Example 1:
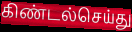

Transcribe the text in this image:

கிண்டல்செய்து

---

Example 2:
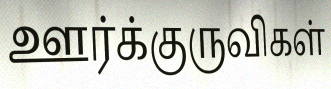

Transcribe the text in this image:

ஊர்க்குருவிகள்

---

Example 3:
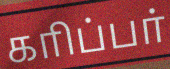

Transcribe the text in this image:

கரிப்பர்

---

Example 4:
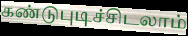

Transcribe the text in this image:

கண்டுபுடிச்சிடலாம்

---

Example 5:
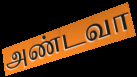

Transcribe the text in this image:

அண்டவா